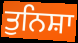
ਤੁਨਿਸ਼ਾ